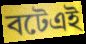
বটেএই